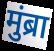
मुंब्रा